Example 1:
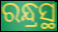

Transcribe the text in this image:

ରନ୍ଧ୍ରସ୍ଥ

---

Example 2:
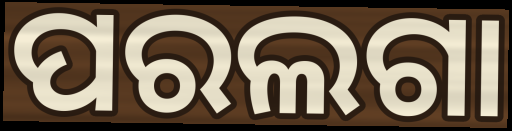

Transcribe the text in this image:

ପରଲଗା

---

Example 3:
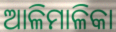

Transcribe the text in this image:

ଆଳିମାଳିକା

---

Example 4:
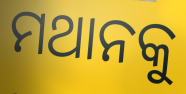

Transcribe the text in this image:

ମଥାନକୁ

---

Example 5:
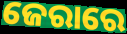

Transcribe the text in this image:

ଜେରାରେ